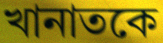
খানাতকে